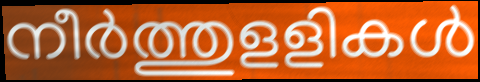
നീർത്തുളളികൾ